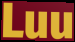
Luu